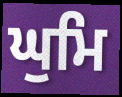
ਘੁਮਿ